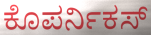
ಕೊಪರ್ನಿಕಸ್